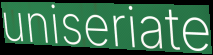
uniseriate